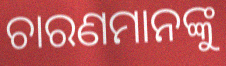
ଚାରଣମାନଙ୍କୁ